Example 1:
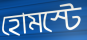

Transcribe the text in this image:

হোমস্টে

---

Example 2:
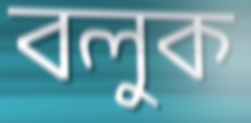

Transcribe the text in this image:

বলুক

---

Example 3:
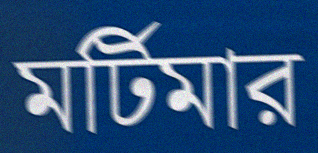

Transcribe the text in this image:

মর্টিমার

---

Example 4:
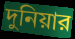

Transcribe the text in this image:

দুনিয়ার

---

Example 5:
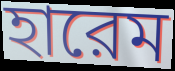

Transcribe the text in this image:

হারেম